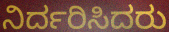
ನಿರ್ದರಿಸಿದರು